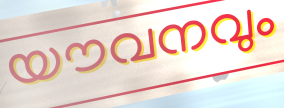
യൗവനവും